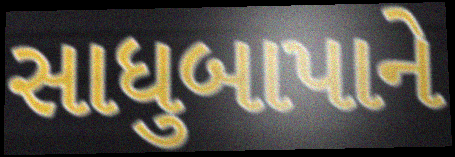
સાધુબાપાને